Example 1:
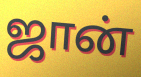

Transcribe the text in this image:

ஜான்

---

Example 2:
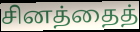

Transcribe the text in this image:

சினத்தைத்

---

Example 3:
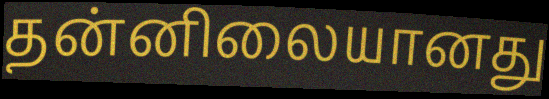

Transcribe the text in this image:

தன்னிலையானது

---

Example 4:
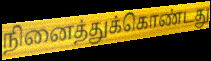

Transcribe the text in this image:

நினைத்துக்கொண்டது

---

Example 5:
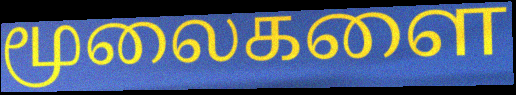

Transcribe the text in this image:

மூலைகளை